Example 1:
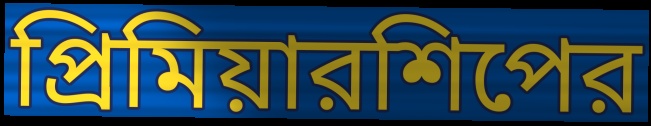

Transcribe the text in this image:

প্রিমিয়ারশিপের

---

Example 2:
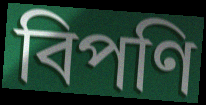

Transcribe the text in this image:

বিপণি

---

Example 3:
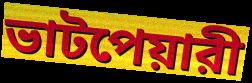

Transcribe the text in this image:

ভাটপেয়ারী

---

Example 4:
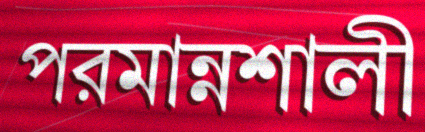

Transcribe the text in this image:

পরমান্নশালী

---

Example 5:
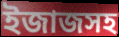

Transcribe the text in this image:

ইজাজসহ